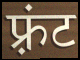
फ़्रंट